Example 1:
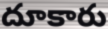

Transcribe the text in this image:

దూకారు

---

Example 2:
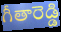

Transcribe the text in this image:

గీతారెడ్డి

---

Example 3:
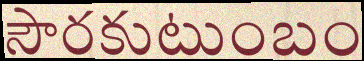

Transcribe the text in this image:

సౌరకుటుంబం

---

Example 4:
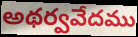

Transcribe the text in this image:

అథర్వవేదము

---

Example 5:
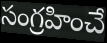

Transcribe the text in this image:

సంగ్రహించే